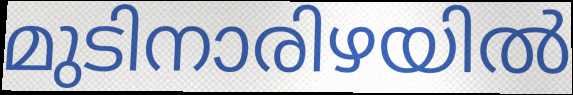
മുടിനാരിഴയിൽ